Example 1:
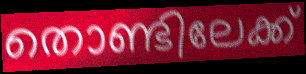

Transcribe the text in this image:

തൊണ്ടിലേക്ക്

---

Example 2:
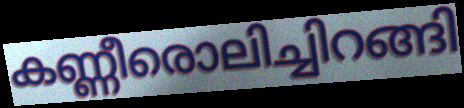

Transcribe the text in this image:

കണ്ണീരൊലിച്ചിറങ്ങി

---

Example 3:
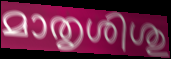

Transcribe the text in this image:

മാതൃശിശു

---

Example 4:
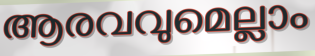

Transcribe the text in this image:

ആരവവുമെല്ലാം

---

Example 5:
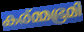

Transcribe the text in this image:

കര്മ്മഭൂമി